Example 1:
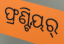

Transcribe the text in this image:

ଫ୍ରଣ୍ଟିୟର୍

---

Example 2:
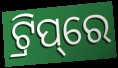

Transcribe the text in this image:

ଟ୍ରିପ୍‌ରେ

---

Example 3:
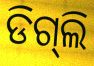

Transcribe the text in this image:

ଡିଗ୍‌ଲି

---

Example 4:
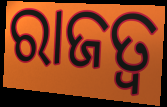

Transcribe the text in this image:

ରାଜତ୍ଵ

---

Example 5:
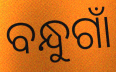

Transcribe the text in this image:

ବନ୍ଧୁଗାଁ